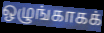
ஒழுங்காகக்